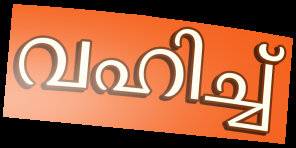
വഹിച്ച്